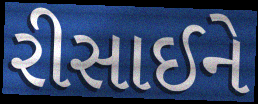
રીસાઈને